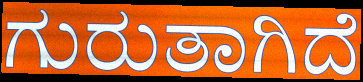
ಗುರುತಾಗಿದೆ